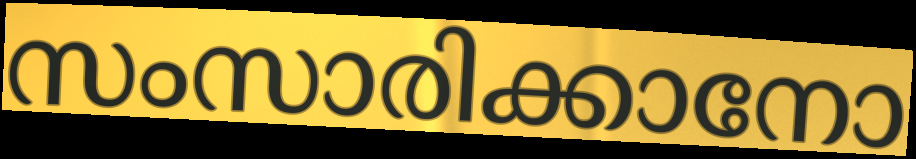
സംസാരിക്കാനോ